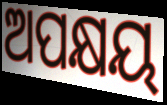
ଅପକ୍ଷୟ